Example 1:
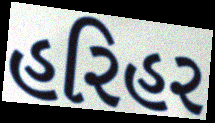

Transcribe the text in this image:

હરિહર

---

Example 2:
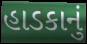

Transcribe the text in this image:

હાડકાનું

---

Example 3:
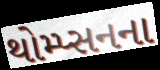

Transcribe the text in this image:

થોમ્પ્સનના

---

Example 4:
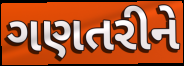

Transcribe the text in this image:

ગણતરીને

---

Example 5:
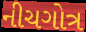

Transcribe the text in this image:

નીચગોત્ર